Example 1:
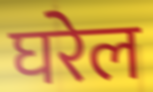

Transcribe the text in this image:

घरेल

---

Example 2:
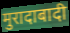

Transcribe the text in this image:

मुरादाबादी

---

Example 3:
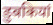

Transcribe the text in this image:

डुबकियां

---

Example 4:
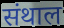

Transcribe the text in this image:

संथाल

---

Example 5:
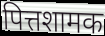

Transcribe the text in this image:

पित्तशामक